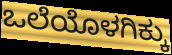
ಒಲೆಯೊಳಗಿಕ್ಕು